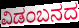
ವಿಡಂಬನದ